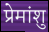
प्रेमांशु